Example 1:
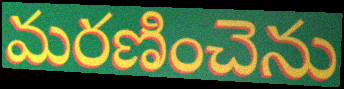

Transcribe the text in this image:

మరణించెను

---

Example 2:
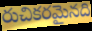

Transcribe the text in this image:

రుచికరమైనది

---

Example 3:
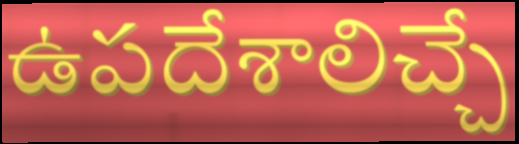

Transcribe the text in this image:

ఉపదేశాలిచ్చే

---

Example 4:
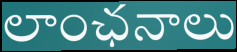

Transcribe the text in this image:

లాంఛనాలు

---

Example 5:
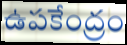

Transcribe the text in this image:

ఉపకేంద్రం